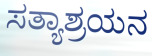
ಸತ್ಯಾಶ್ರಯನ